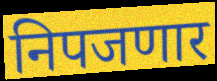
निपजणार